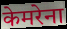
केमरेना